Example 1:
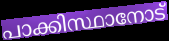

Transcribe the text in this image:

പാക്കിസ്ഥാനോട്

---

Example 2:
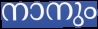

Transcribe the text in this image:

നാനും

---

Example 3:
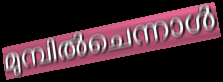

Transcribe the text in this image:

മുമ്പിൽചെന്നാൾ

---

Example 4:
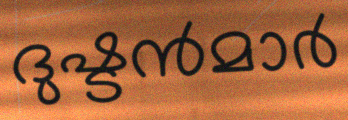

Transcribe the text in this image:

ദുഷ്ടൻമാർ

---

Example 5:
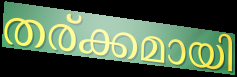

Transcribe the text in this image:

തര്ക്കമായി